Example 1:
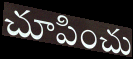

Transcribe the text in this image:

చూపించు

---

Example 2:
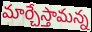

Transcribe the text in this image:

మార్చేస్తామన్న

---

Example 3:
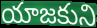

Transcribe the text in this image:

యాజకుని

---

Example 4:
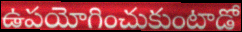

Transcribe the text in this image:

ఉపయోగించుకుంటాడో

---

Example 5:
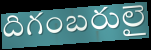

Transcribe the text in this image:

దిగంబరులై